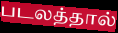
படலத்தால்